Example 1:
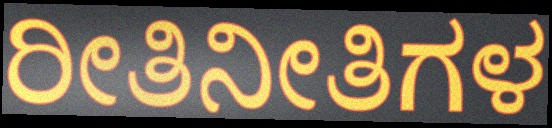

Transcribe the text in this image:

ರೀತಿನೀತಿಗಳ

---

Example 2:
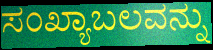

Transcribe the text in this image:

ಸಂಖ್ಯಾಬಲವನ್ನು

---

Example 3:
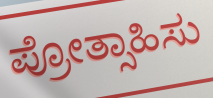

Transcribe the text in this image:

ಪ್ರೋತ್ಸಾಹಿಸು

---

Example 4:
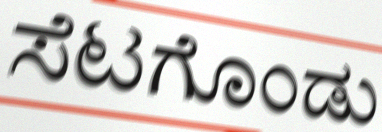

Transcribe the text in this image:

ಸೆಟಗೊಂಡು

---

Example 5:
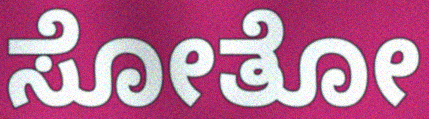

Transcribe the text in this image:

ಸೋತೋ